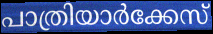
പാത്രിയാർക്കേസ്